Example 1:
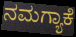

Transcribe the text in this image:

ನಮಗ್ಯಾಕೆ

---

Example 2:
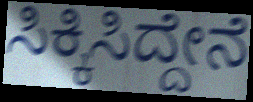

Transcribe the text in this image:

ಸಿಕ್ಕಿಸಿದ್ದೇನೆ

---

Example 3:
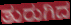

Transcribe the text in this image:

ತುರುಗಿದ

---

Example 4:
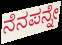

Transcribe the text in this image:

ನೆನಪನ್ನೇ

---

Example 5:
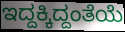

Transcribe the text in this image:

ಇದ್ದಕ್ಕಿದ್ದಂತೆಯೆ